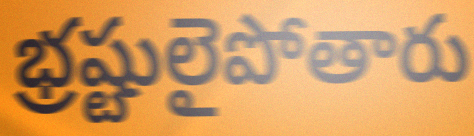
భ్రష్టులైపోతారు